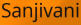
Sanjivani